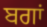
ਬਗਾਂ